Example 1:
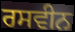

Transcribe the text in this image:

ਰਸਵੀਨ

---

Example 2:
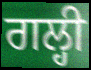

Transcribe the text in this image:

ਗਲ੍ਹੀ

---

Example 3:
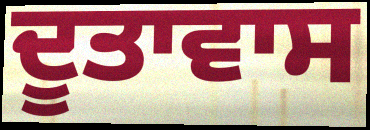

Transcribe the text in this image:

ਦੂਤਾਵਾਸ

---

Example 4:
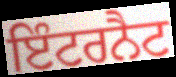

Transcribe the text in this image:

ਇੰਟਰਨੈਟ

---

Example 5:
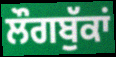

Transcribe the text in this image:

ਲੌਗਬੁੱਕਾਂ